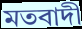
মতবাদী